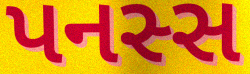
પનસ્સ